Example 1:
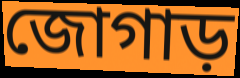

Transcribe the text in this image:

জোগাড়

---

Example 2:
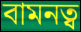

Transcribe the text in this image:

বামনত্ব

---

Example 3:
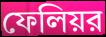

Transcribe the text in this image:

ফেলিয়র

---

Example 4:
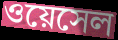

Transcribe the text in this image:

ওয়েসেল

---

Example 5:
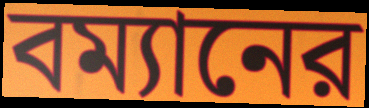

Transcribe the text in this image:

বম্যানের